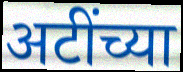
अटींच्या